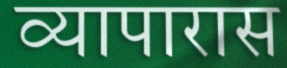
व्यापारास